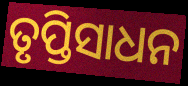
ତୃପ୍ତିସାଧନ